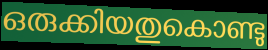
ഒരുക്കിയതുകൊണ്ടു